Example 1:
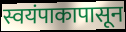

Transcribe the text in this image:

स्वयंपाकापासून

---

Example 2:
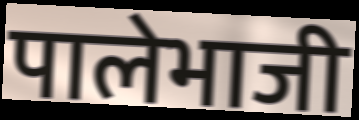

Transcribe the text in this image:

पालेभाजी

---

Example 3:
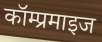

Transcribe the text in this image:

कॉम्प्रमाइज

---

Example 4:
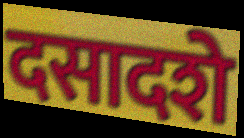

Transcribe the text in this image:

दसादशे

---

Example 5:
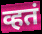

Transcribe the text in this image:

व्हतं